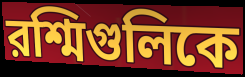
রশ্মিগুলিকে